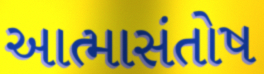
આત્માસંતોષ